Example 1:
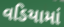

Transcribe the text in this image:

વડિયામાં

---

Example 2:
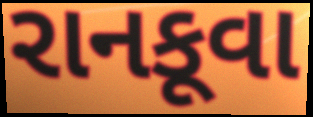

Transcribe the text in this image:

રાનકૂવા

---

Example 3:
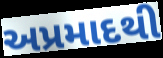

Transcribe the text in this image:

અપ્રમાદથી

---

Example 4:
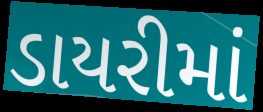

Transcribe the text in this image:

ડાયરીમાં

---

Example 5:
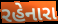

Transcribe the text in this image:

રહેનારા